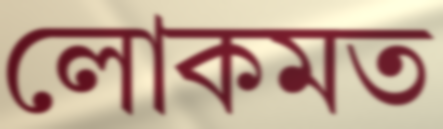
লোকমত